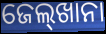
ଜେଲ୍‌ଖାନା